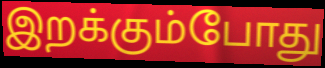
இறக்கும்போது